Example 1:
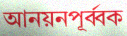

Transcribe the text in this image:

আনয়নপূর্ব্বক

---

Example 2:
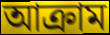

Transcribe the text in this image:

আক্রাম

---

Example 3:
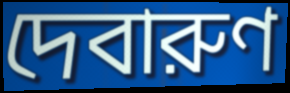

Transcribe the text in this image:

দেবারুণ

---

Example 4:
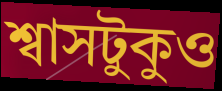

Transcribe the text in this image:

শ্বাসটুকুও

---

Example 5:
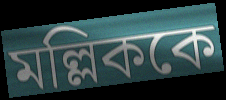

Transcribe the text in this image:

মল্লিককে